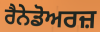
ਰੈਨੇਡੋਅਰਜ਼